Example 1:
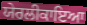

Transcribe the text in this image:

ਯੇਰਲੀਕਾਇਆ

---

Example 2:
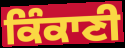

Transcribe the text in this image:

ਕਿੰਕਾਣੀ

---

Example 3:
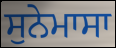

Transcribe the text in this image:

ਸੁਨੇਮਾਸਾ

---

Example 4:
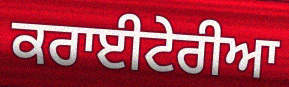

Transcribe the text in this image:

ਕਰਾਈਟੇਰੀਆ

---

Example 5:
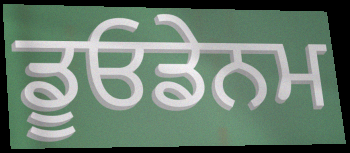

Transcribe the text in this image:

ਡੂਓਡੇਨਮ